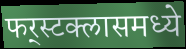
फर्स्टक्लासमध्ये